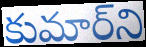
కుమార్‌ని